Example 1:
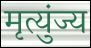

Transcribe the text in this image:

मृत्युंज्य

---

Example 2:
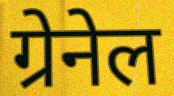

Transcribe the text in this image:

ग्रेनेल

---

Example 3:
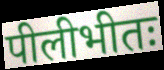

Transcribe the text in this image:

पीलीभीतः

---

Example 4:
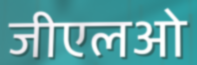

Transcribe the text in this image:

जीएलओ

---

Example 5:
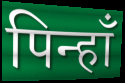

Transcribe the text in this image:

पिन्हाँ